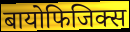
बायोफिजिक्स